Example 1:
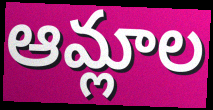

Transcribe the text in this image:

ఆమ్లాల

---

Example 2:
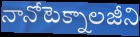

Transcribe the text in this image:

నానోటెక్నాలజీని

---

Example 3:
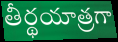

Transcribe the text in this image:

తీర్థయాత్రగా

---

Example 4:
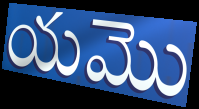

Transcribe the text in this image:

యమొ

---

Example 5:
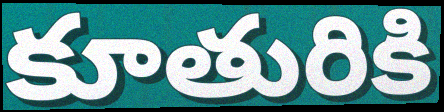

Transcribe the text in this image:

కూతురికి